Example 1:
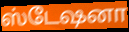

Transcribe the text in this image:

ஸ்டேஷனா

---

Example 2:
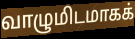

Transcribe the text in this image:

வாழுமிடமாகக்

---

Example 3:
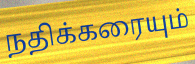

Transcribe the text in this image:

நதிக்கரையும்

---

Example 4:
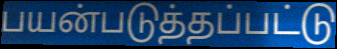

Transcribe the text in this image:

பயன்படுத்தப்பட்டு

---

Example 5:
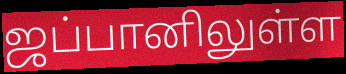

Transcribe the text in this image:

ஜப்பானிலுள்ள